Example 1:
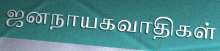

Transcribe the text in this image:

ஜனநாயகவாதிகள்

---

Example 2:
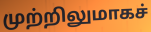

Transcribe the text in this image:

முற்றிலுமாகச்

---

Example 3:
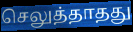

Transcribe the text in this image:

செலுத்தாதது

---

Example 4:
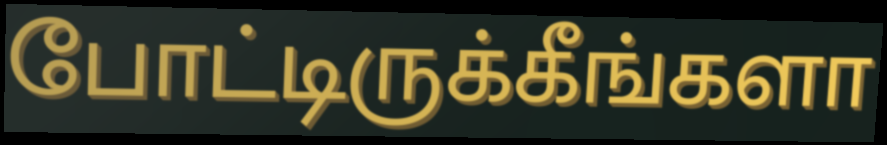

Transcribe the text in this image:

போட்டிருக்கீங்களா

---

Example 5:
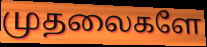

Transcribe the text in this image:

முதலைகளே